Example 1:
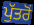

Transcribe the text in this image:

ਪੁੱਤਰੋਂ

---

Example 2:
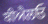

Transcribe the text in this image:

ਬੀਐਲਓ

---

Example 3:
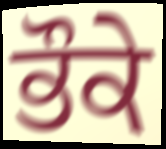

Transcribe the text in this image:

ਭੌਕੇ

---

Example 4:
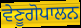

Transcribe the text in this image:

ਵੇਣੂਗੋਪਾਲਨ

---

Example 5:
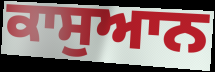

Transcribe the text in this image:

ਕਾਸੁਆਨ